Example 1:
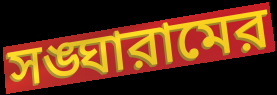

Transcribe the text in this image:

সঙ্ঘারামের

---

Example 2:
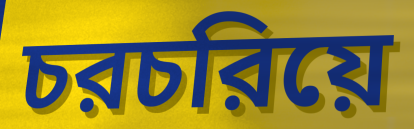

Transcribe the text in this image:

চরচরিয়ে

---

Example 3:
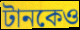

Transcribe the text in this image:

টানকেও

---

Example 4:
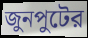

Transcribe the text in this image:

জুনপুটের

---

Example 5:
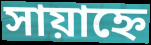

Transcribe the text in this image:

সায়াহ্নে